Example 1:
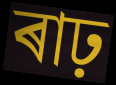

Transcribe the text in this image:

ৰাঢ়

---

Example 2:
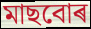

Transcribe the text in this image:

মাছবোৰ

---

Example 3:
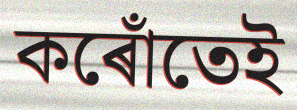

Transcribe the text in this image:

কৰোঁতেই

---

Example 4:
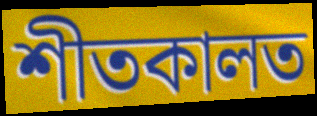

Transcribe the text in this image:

শীতকালত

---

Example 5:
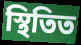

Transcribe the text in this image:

স্থিতিত